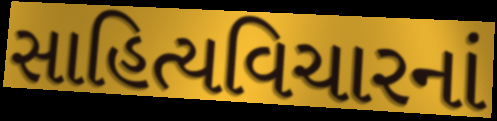
સાહિત્યવિચારનાં